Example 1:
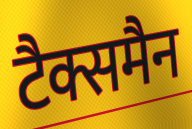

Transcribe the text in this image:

टैक्समैन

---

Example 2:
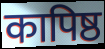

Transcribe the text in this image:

कापिष्ठ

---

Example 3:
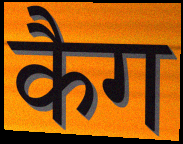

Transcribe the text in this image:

कैग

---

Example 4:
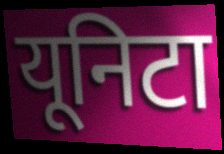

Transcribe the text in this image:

यूनिटा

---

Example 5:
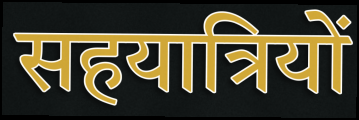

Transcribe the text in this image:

सहयात्रियों